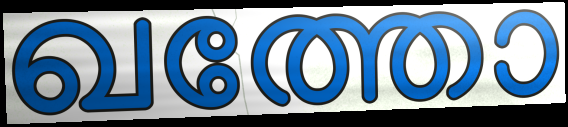
ഖത്തോ